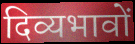
दिव्यभावों